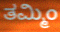
ತಮ್ಮಿಂ